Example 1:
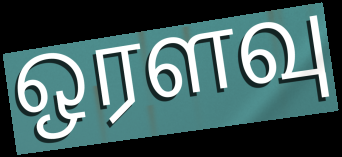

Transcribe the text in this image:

ஒரளவு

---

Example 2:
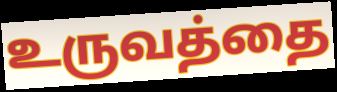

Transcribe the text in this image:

உருவத்தை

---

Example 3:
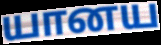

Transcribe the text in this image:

யானய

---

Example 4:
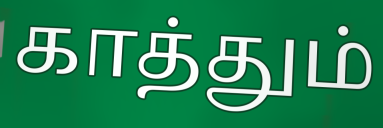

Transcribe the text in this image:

காத்தும்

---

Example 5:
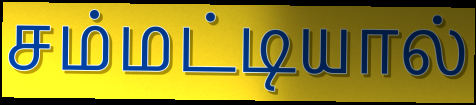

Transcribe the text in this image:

சம்மட்டியால்